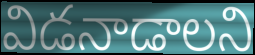
విడనాడాలని